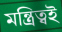
মন্ত্রিত্বই